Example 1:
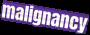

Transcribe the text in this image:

malignancy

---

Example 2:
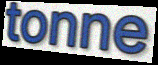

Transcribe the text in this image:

tonne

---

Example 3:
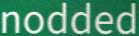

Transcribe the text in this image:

nodded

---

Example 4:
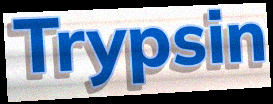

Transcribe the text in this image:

Trypsin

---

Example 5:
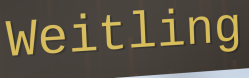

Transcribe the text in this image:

Weitling